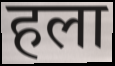
हला